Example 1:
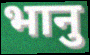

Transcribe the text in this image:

भानु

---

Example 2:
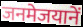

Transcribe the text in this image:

जनमेजयानें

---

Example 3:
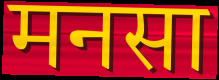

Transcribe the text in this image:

मनसा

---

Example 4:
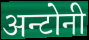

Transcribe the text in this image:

अन्टोनी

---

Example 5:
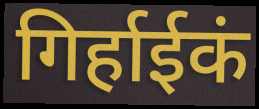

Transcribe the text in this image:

गिर्हाईकं